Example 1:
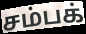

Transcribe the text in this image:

சம்பக்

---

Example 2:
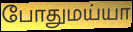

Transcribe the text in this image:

போதுமய்யா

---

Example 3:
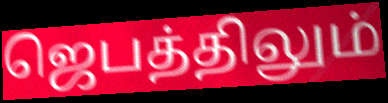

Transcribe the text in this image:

ஜெபத்திலும்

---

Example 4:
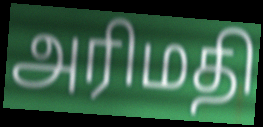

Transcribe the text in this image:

அரிமதி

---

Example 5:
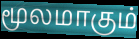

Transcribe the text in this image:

மூலமாகும்